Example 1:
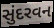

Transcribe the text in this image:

સુંદરવન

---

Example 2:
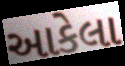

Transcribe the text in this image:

આકેલા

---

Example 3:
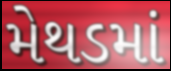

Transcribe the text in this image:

મેથડમાં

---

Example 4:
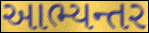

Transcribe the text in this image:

આભ્યન્તર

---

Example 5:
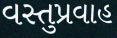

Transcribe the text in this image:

વસ્તુપ્રવાહ